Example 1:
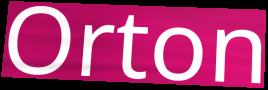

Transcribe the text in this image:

Orton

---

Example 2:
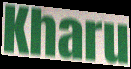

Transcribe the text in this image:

Kharu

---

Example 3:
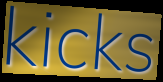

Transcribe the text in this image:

kicks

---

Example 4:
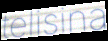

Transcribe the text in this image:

telisina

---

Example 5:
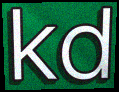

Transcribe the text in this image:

kd